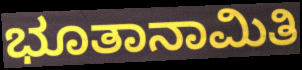
ಭೂತಾನಾಮಿತಿ